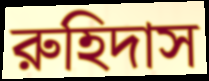
রুহিদাস